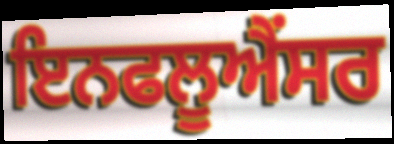
ਇਨਫਲੂਐਂਸਰ